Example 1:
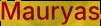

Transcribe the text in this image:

Mauryas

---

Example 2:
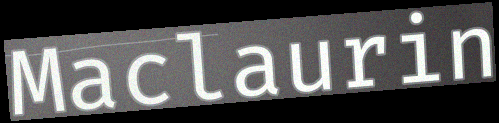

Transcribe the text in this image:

Maclaurin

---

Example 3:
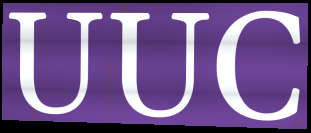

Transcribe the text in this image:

UUC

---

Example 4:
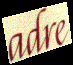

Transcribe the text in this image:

adre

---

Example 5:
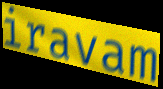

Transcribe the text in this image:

iravam